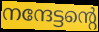
നന്ദേട്ടന്റെ